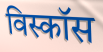
विस्कॉस